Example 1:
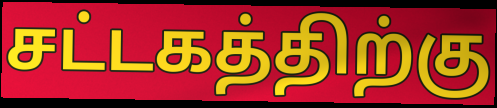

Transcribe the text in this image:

சட்டகத்திற்கு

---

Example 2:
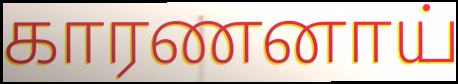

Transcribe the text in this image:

காரணனாய்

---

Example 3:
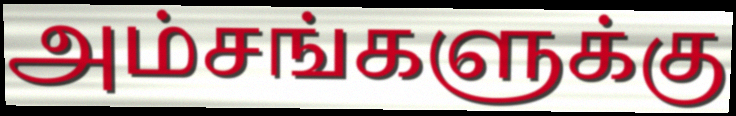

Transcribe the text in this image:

அம்சங்களுக்கு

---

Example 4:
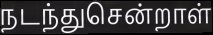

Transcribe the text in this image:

நடந்துசென்றாள்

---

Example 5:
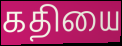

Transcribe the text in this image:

கதியை